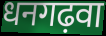
धनगढ़वा